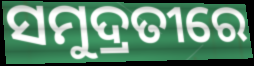
ସମୁଦ୍ରତୀରେ